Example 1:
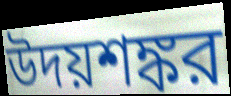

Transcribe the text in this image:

উদয়শঙ্কর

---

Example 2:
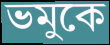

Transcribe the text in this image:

ভমুকে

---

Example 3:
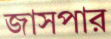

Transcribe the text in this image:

জাসপার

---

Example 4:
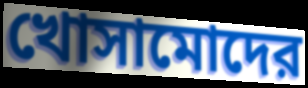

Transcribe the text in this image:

খোসামোদের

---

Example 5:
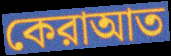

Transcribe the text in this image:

কেরাআত